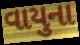
વાયુના